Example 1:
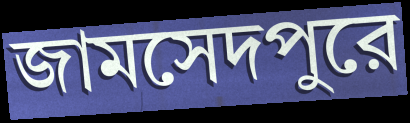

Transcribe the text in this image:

জামসেদপুরে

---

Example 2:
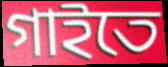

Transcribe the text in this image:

গাইতে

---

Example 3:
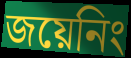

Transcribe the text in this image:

জয়েনিং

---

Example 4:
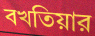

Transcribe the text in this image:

বখতিয়ার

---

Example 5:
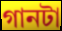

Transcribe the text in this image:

গানটা